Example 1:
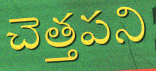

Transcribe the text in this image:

చెత్తపని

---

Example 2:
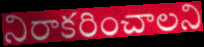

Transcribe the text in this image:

నిరాకరించాలని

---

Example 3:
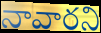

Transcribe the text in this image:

నావారని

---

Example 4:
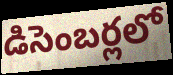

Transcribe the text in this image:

డిసెంబర్లలో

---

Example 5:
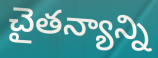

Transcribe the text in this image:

చైతన్యాన్ని